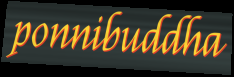
ponnibuddha